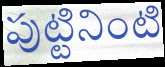
పుట్టినింటి